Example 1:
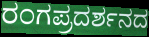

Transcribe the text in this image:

ರಂಗಪ್ರದರ್ಶನದ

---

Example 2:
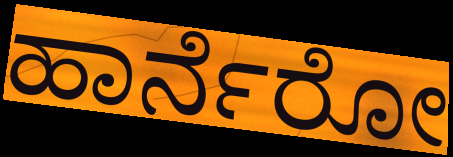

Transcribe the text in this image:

ಹಾರ್ನೆರೋ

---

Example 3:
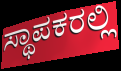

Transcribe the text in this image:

ಸ್ಥಾಪಕರಲ್ಲಿ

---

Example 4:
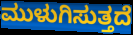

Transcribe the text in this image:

ಮುಳುಗಿಸುತ್ತದೆ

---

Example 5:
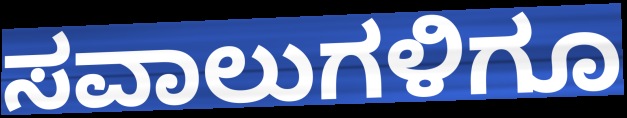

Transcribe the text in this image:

ಸವಾಲುಗಳಿಗೂ